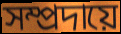
সম্প্রদায়ে